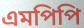
এমপিপি